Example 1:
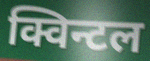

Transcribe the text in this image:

क्विन्टल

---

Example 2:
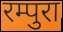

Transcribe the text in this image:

रम्पुरा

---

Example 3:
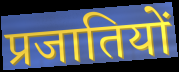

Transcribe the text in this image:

प्रजातियों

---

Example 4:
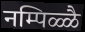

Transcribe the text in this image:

नम्पिळ्ळै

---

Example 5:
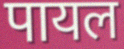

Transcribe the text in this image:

पायल